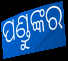
ପଣ୍ଡୁଙ୍କର